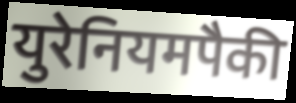
युरेनियमपैकी